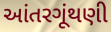
આંતરગૂંથણી